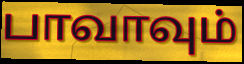
பாவாவும்